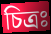
চিত্রঃ